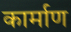
कार्माण